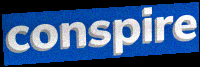
conspire